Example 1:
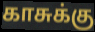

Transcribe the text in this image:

காசுக்கு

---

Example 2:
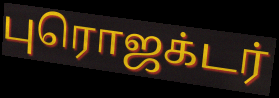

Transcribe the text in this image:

புரொஜக்டர்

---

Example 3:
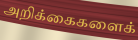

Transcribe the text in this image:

அறிக்கைகளைக்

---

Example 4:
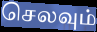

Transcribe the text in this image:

செலவும்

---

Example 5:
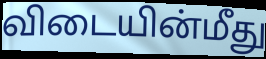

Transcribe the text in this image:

விடையின்மீது